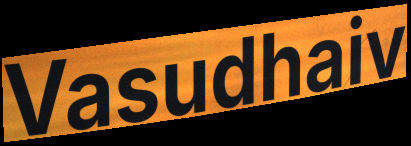
Vasudhaiv